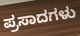
ಪ್ರಸಾದಗಳು